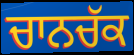
ਚਾਨਚੱਕ